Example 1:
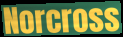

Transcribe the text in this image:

Norcross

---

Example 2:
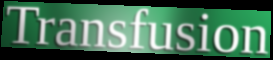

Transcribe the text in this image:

Transfusion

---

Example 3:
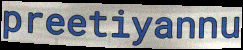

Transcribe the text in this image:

preetiyannu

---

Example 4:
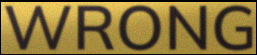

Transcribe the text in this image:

WRONG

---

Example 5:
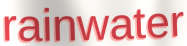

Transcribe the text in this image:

rainwater